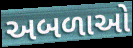
અબળાઓ